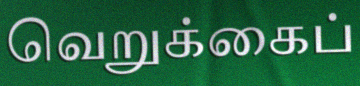
வெறுக்கைப்